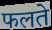
फलते